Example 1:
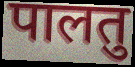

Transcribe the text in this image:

पालतु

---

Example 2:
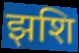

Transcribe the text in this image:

झशि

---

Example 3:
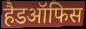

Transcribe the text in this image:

हैडऑफिस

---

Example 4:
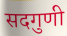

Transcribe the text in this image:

सदगुणी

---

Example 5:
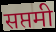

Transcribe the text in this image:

सप्तमी